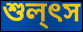
শুল্ৎস